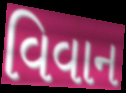
વિવાન